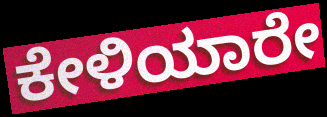
ಕೇಳಿಯಾರೇ